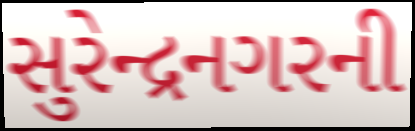
સુરેન્દ્રનગરની